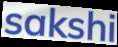
sakshi